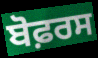
ਬੋਫ਼ਰਸ